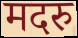
मदरु